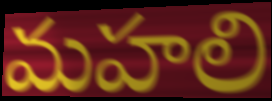
మహలి